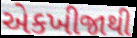
એકખીજાથી